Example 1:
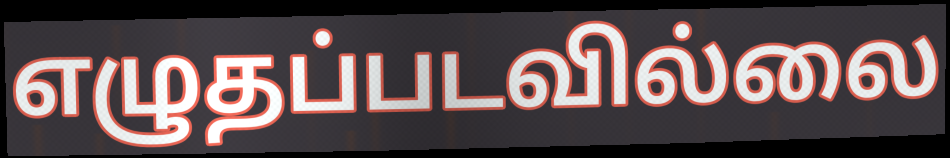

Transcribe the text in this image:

எழுதப்படவில்லை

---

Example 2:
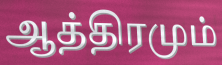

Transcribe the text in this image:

ஆத்திரமும்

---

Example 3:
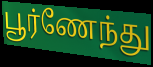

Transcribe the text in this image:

பூர்ணேந்து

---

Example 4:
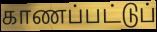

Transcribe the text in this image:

காணப்பட்டுப்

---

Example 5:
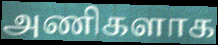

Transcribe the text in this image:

அணிகளாக